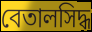
বেতালসিদ্ধ